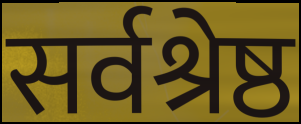
सर्वश्रेष्ठ